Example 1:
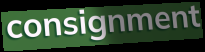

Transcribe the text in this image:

consignment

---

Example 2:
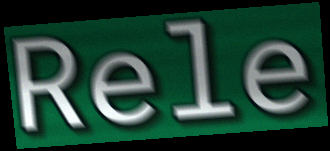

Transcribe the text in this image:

Rele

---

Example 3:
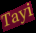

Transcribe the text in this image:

Tayi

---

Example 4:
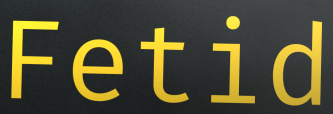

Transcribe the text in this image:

Fetid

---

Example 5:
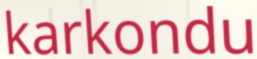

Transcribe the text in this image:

karkondu